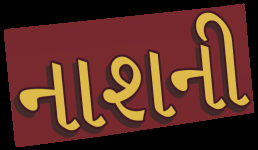
નાશની